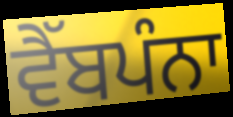
ਵੈੱਬਪੰਨਾ